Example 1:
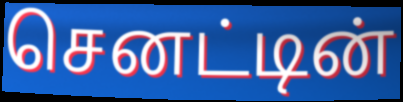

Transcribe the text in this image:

செனட்டின்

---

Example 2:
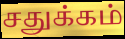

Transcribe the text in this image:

சதுக்கம்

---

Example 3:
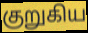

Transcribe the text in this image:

குறுகிய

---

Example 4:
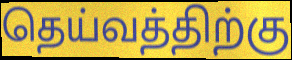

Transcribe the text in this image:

தெய்வத்திற்கு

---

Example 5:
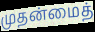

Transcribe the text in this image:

முதன்மைத்